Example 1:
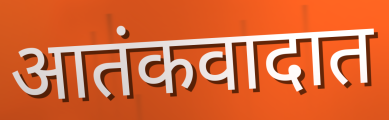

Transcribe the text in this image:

आतंकवादात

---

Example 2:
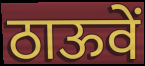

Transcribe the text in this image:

ठाऊवें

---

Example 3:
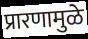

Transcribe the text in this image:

प्रारणामुळे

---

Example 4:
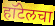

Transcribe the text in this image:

हॉटेलचा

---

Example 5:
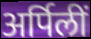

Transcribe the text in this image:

अर्पिलीं